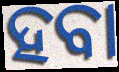
ହବା